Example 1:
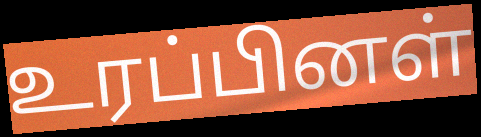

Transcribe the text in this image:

உரப்பினள்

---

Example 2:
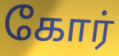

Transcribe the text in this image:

கோர்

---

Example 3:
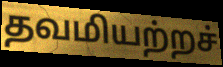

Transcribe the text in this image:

தவமியற்றச்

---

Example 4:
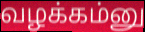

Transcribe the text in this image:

வழக்கம்னு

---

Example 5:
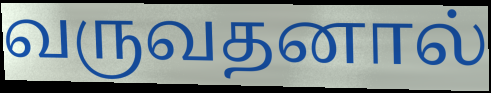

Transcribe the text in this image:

வருவதனால்